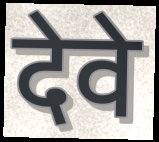
देवे